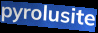
pyrolusite